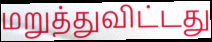
மறுத்துவிட்டது